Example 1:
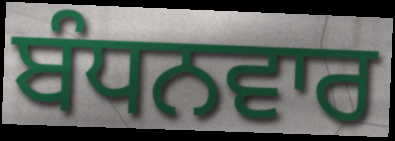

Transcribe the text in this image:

ਬੰਧਨਵਾਰ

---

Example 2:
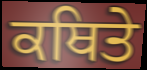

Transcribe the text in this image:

ਕਥਿਤੇ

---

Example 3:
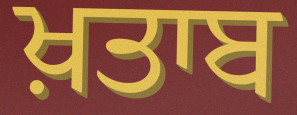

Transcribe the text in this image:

ਖ਼ਤਾਬ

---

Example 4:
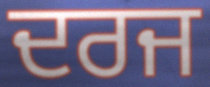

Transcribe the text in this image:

ਦਰਜ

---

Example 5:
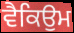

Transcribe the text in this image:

ਵੈਕਿਉਮ